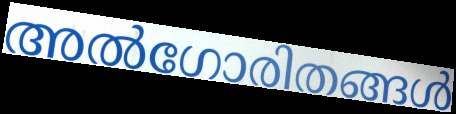
അൽഗോരിതങ്ങൾ